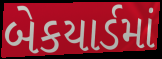
બેકયાર્ડમાં